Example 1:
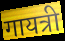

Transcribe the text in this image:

गायत्री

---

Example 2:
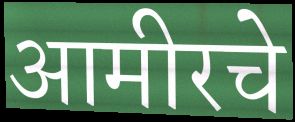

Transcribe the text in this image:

आमीरचे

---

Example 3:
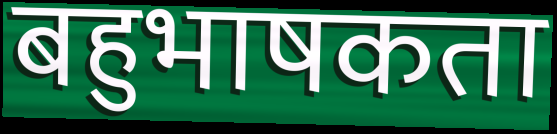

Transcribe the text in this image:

बहुभाषकता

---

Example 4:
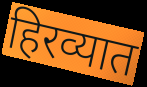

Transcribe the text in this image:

हिरव्यात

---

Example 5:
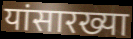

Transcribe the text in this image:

यांसारख्या